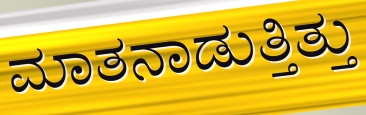
ಮಾತನಾಡುತ್ತಿತ್ತು